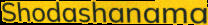
Shodashanama